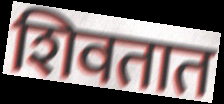
शिवतात